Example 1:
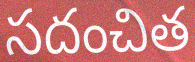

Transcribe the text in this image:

సదంచిత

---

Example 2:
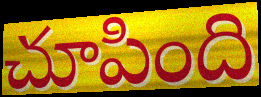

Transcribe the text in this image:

చూపింది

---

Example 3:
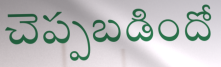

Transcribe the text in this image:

చెప్పబడిందో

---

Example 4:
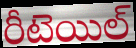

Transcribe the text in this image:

రీటెయిల్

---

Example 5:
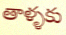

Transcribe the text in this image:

తాళ్ళకు